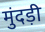
मुंदड़ी